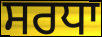
ਸਰਧਾ